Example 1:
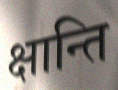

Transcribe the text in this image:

क्षान्ति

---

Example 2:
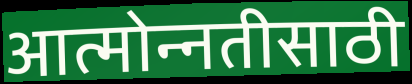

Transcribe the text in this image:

आत्मोन्नतीसाठी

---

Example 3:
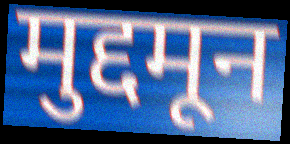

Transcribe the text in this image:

मुद्दमून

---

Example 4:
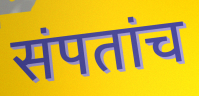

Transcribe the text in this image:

संपतांच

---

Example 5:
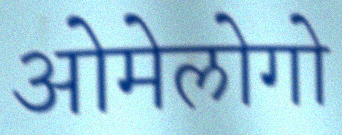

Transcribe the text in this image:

ओमेलोगो